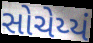
સોચેય્યં